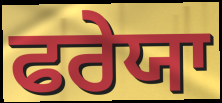
ਫਰੇਯਾ